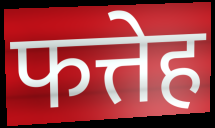
फत्तेह